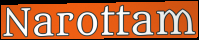
Narottam